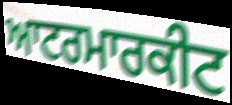
ਆਟਰਮਾਰਕੀਟ